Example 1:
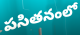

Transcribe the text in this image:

పసితనంలో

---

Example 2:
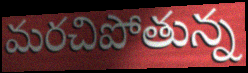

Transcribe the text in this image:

మరచిపోతున్న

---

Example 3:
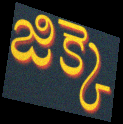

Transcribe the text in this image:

జిక్కె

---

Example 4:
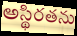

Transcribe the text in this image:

అస్థిరతను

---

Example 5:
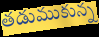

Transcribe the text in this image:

తడుముకున్న